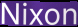
Nixon